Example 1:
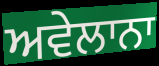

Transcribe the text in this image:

ਅਵੇਲਾਨਾ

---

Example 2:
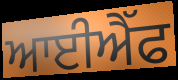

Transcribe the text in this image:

ਆਈਐੱਫ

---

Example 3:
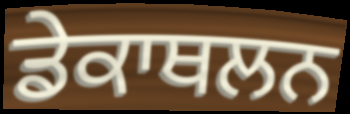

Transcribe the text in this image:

ਡੇਕਾਥਲਨ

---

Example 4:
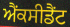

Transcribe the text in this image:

ਐਂਕਸੀਡੈਂਟ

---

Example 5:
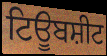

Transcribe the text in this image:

ਟਿਊਬਸ਼ੀਟ